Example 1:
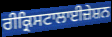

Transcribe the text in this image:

ਰੀਕ੍ਰਿਸਟਾਲਾਈਜ਼ੇਸ਼ਨ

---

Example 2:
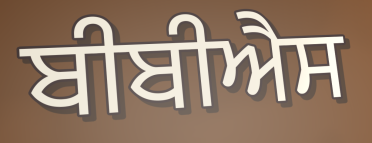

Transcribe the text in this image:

ਬੀਬੀਐਸ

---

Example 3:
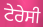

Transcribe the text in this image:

ਟੇਰੇਸੀ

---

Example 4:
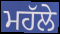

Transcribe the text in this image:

ਮਹੱਲੇ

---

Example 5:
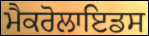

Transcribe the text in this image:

ਮੈਕਰੋਲਾਇਡਸ